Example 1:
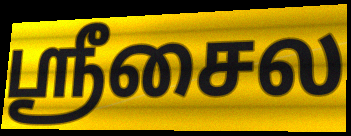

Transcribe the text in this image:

ஸ்ரீசைல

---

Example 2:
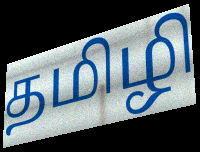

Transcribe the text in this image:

தமிழி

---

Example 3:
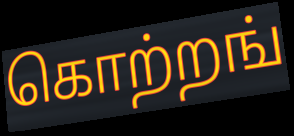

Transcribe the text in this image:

கொற்றங்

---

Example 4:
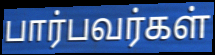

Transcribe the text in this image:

பார்பவர்கள்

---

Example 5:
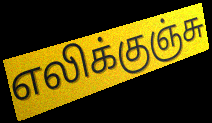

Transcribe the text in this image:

எலிக்குஞ்சு